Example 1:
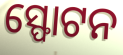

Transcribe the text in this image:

ସ୍ଫୋଟନ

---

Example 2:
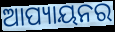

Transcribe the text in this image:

ଆପ୍ୟାୟନର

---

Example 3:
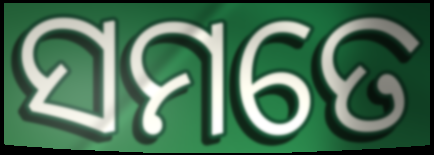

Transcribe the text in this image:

ସମତେ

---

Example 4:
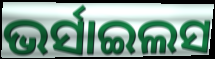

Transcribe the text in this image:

ଭର୍ସାଇଲସ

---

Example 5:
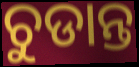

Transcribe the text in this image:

ଚୁଡାନ୍ତ